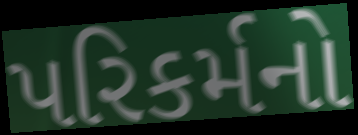
પરિકર્મનો